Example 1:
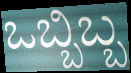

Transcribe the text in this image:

ಒಬ್ಬಿಬ್ಬ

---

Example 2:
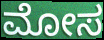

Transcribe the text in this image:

ಮೋಸ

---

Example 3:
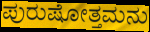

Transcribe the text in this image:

ಪುರುಷೋತ್ತಮನು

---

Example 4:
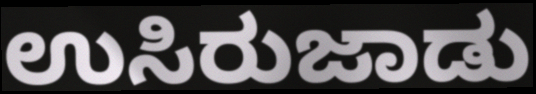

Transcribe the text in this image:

ಉಸಿರುಜಾಡು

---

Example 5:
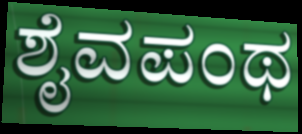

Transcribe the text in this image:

ಶೈವಪಂಥ